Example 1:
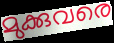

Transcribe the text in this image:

മുക്കുവരെ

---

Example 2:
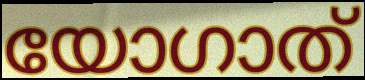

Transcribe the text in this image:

യോഗാത്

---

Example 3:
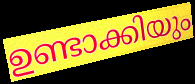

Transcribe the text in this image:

ഉണ്ടാക്കിയും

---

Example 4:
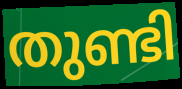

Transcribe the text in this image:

തുണ്ടി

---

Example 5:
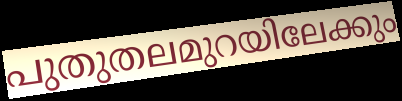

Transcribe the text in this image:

പുതുതലമുറയിലേക്കും